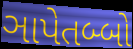
ઞાપેતબ્બો